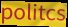
politcs